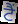
ਟੈੰ